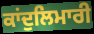
ਕਾਂਦੁਲਿਮਾਰੀ